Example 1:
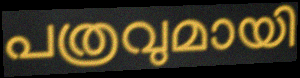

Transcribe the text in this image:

പത്രവുമായി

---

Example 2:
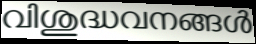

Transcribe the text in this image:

വിശുദ്ധവനങ്ങൾ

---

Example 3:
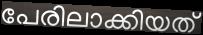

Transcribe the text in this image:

പേരിലാക്കിയത്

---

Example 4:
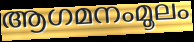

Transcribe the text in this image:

ആഗമനംമൂലം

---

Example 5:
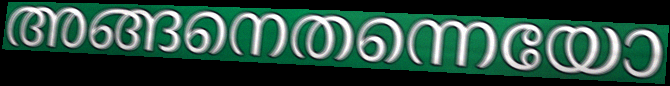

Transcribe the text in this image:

അങ്ങനെതന്നെയോ